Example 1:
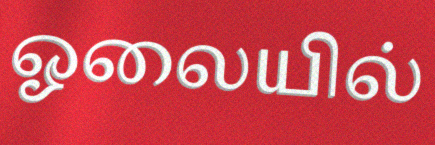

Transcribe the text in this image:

ஓலையில்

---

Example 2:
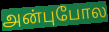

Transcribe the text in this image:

அன்புபோல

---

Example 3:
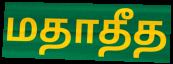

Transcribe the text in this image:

மதாதீத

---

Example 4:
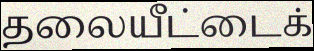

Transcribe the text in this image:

தலையீட்டைக்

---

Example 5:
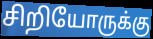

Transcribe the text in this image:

சிறியோருக்கு